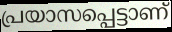
പ്രയാസപ്പെട്ടാണ്